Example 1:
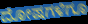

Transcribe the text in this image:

ದೋಷಗಳಿಗೂ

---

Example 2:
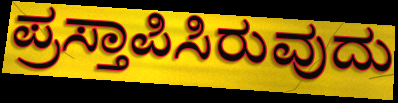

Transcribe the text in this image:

ಪ್ರಸ್ತಾಪಿಸಿರುವುದು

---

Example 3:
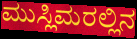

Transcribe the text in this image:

ಮುಸ್ಲಿಮರಲ್ಲಿನ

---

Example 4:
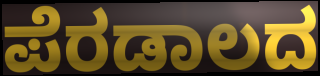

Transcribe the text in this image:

ಪೆರಡಾಲದ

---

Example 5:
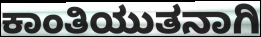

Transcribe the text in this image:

ಕಾಂತಿಯುತನಾಗಿ